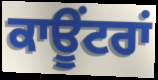
ਕਾਊਂਟਰਾਂ